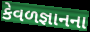
કેવળજ્ઞાનના